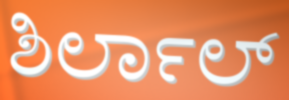
ಶಿರ್ಲಾಲ್